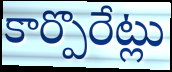
కార్పొరేట్లు